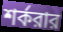
শর্করার